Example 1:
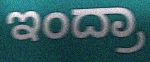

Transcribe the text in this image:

ಇಂದ್ರಾ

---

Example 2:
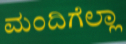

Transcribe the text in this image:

ಮಂದಿಗೆಲ್ಲಾ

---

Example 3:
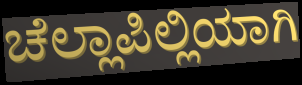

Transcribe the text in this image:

ಚೆಲ್ಲಾಪಿಲ್ಲಿಯಾಗಿ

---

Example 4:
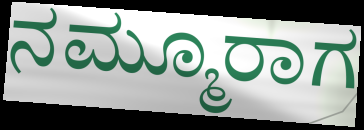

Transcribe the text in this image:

ನಮ್ಮೂರಾಗ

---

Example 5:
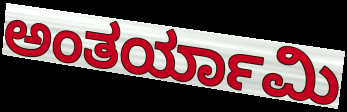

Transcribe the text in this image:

ಅಂತರ್ಯಾಮಿ